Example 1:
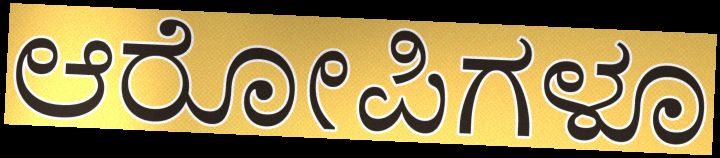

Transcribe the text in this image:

ಆರೋಪಿಗಳೂ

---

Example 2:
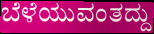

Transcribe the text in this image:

ಬೆಳೆಯುವಂತದ್ದು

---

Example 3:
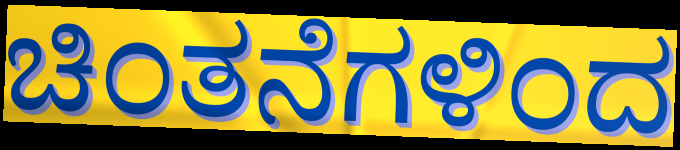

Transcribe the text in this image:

ಚಿಂತನೆಗಳಿಂದ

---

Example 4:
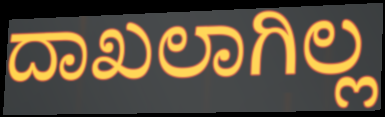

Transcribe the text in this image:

ದಾಖಲಾಗಿಲ್ಲ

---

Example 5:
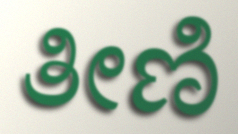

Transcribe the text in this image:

ತೀಣಿ